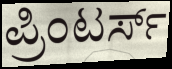
ಪ್ರಿಂಟರ್ಸ್